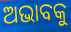
ଅଭାବକୁ